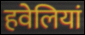
हवेलियां